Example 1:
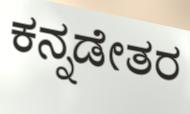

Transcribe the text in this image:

ಕನ್ನಡೇತರ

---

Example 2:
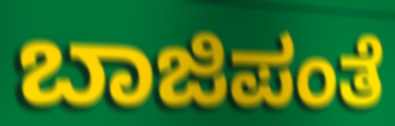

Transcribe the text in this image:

ಬಾಜಿಪಂತೆ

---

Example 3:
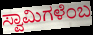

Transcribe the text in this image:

ಸ್ವಾಮಿಗಳೆಂಬ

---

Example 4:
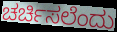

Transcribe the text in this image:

ಚರ್ಚಿಸಲೆಂದು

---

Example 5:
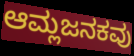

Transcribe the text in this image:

ಆಮ್ಲಜನಕವು